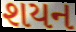
શયન